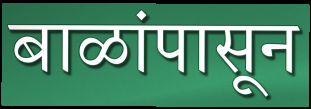
बाळांपासून